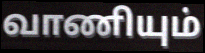
வாணியும்